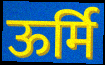
ऊर्मि